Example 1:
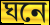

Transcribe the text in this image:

ঘনে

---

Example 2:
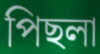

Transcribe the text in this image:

পিছলা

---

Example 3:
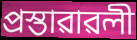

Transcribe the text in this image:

প্ৰস্তাৱাৱলী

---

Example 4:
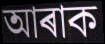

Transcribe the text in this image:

আৰাক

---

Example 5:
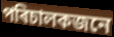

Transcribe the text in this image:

পৰিচালকজনে